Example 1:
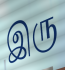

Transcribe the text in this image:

இரு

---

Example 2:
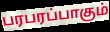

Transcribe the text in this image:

பரபரப்பாகும்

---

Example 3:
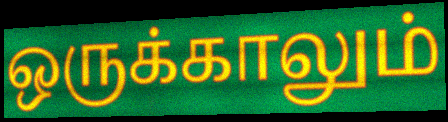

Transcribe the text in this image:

ஒருக்காலும்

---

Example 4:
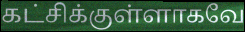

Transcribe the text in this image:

கட்சிக்குள்ளாகவே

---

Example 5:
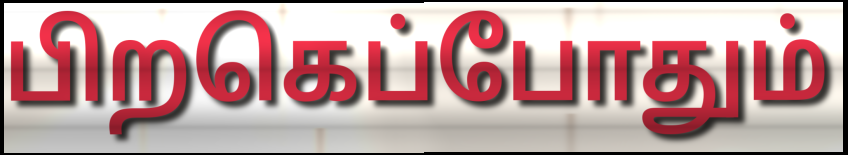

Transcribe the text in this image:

பிறகெப்போதும்